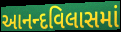
આનન્દવિલાસમાં